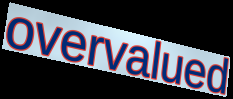
overvalued